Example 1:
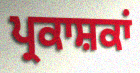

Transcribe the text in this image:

ਪ੍ਰਕਾਸ਼ਕਾਂ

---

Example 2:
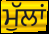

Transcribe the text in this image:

ਮੁੱਲਾਂ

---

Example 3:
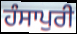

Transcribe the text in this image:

ਹੰਸਾਪੁਰੀ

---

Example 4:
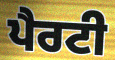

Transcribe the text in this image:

ਪੈਰਟੀ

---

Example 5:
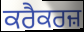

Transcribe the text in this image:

ਕਰੈਕਰਜ਼